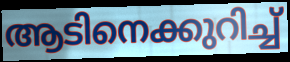
ആടിനെക്കുറിച്ച്